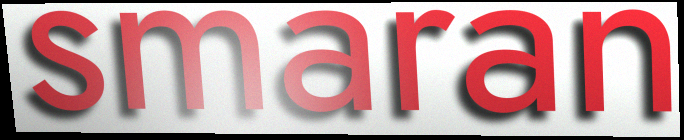
smaran